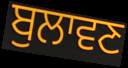
ਬੁਲਾਵਣ